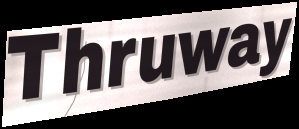
Thruway